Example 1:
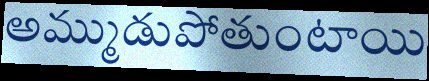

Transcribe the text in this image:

అమ్ముడుపోతుంటాయి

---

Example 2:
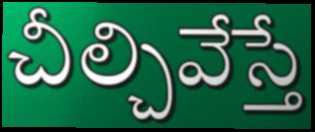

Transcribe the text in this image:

చీల్చివేస్తే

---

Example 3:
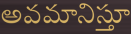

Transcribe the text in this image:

అవమానిస్తూ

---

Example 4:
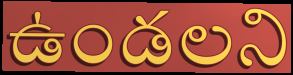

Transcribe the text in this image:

ఉండలని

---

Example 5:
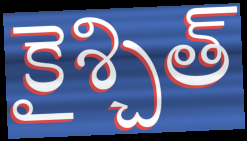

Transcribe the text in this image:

కైశ్చిత్